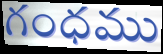
గంధము